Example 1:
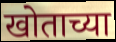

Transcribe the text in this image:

खोताच्या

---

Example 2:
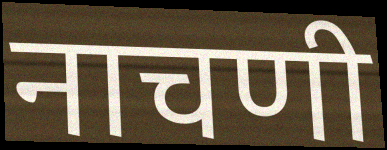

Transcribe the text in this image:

नाचणी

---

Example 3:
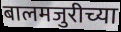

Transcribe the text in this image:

बालमजुरीच्या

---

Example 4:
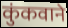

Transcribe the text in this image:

कुंकवाने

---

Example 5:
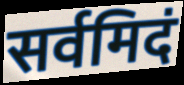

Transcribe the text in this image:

सर्वमिदं